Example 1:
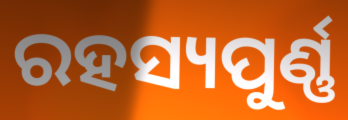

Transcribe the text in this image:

ରହସ୍ୟପୁର୍ଣ୍ଣ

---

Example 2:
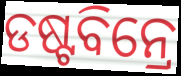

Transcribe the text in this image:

ଡଷ୍ଟବିନ୍ରେ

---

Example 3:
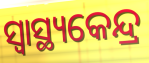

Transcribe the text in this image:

ସ୍ୱାସ୍ଥ୍ୟକେନ୍ଦ୍ର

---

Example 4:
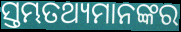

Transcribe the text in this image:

ସ୍ତମ୍ଭତଥ୍ୟମାନଙ୍କର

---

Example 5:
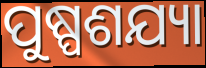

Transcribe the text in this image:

ପୁଷ୍ପଶଯ୍ୟା